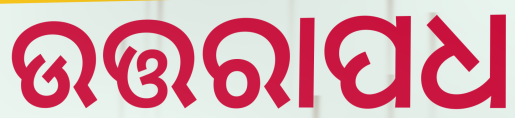
ଉତ୍ତରାପଧ